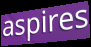
aspires